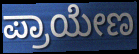
ಪ್ರಾಯೇಣ